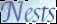
Nests